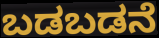
ಬಡಬಡನೆ